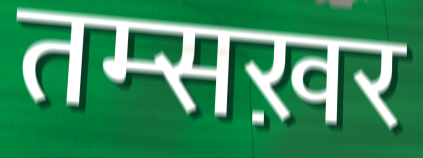
तम्सख़र